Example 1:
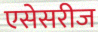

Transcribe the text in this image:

एसेसरीज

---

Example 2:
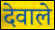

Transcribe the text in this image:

देवाले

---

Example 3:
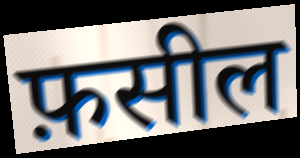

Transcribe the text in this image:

फ़सील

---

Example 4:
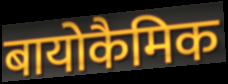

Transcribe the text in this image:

बायोकैमिक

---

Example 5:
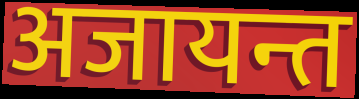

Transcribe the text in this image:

अजायन्त